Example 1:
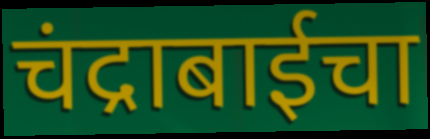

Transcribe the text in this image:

चंद्राबाईचा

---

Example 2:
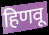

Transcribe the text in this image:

हिणवू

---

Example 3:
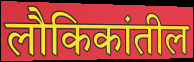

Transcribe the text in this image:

लौकिकांतील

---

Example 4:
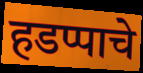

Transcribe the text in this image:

हडप्पाचे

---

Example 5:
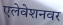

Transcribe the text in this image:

एलेवेशनवर